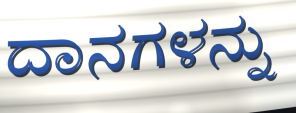
ದಾನಗಳನ್ನು